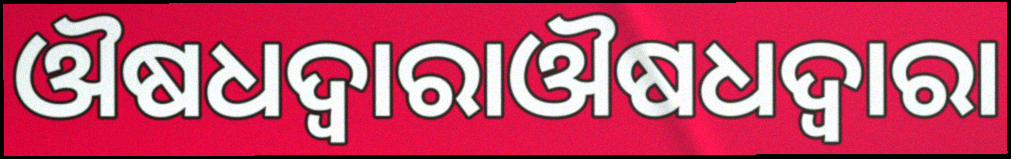
ଔଷଧଦ୍ଵାରାଔଷଧଦ୍ବାରା